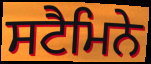
ਸਟੈਮਿਨੇ